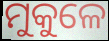
ମୁକୁଳେ